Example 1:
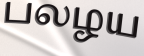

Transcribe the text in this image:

பலழய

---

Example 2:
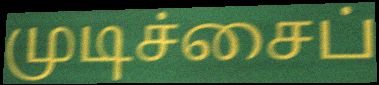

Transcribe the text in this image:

முடிச்சைப்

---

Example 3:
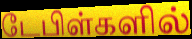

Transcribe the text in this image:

டேபிள்களில்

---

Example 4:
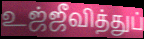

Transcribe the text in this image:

உஜ்ஜீவித்துப்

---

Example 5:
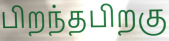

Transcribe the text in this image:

பிறந்தபிறகு